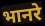
भानरे